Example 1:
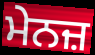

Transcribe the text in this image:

ਮੇਨਜ਼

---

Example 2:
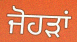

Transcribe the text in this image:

ਜੋਹੜਾਂ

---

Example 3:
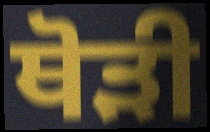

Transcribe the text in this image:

ਥੋੜੀ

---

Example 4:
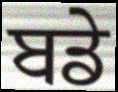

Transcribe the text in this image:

ਬਡੇ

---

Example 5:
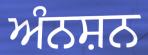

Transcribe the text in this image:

ਅੰਨਸ਼ਨ